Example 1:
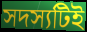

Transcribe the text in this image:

সদস্যটিই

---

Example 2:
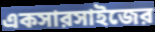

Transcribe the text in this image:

একসারসাইজের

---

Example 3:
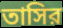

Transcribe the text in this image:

তাসির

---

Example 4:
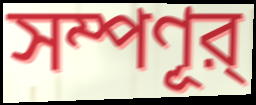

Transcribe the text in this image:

সম্পণূর্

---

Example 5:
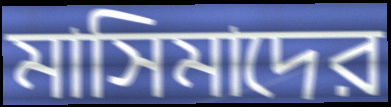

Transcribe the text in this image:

মাসিমাদের